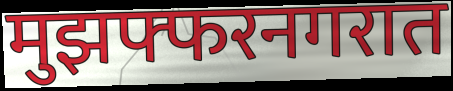
मुझफ्फरनगरात